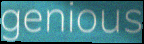
genious